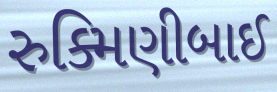
રુક્મિણીબાઈ